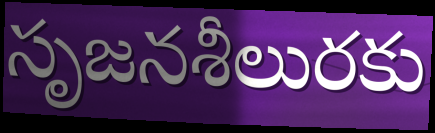
సృజనశీలురకు